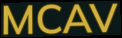
MCAV